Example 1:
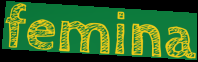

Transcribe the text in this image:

femina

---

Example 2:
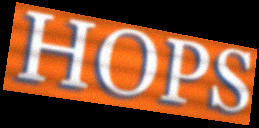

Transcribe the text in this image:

HOPS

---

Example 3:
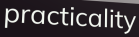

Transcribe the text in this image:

practicality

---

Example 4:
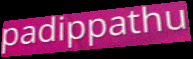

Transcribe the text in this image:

padippathu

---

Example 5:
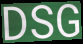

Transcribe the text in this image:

DSG